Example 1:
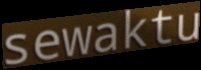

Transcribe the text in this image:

sewaktu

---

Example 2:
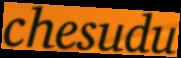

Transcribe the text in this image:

chesudu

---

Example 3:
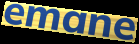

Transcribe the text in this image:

emane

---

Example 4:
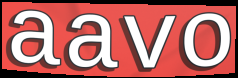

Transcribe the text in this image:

aavo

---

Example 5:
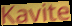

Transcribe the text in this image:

Kavite